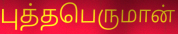
புத்தபெருமான்